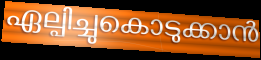
ഏല്പിച്ചുകൊടുക്കാൻ